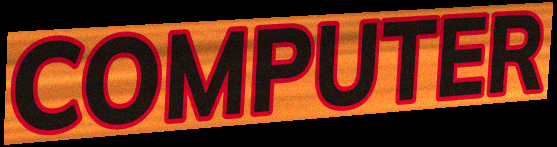
COMPUTER